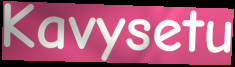
Kavysetu